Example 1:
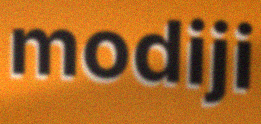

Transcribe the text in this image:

modiji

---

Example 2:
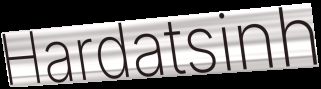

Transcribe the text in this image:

Hardatsinh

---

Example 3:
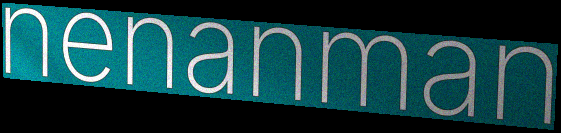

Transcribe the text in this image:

nenanman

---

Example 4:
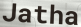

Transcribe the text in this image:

Jatha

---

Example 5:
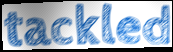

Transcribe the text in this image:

tackled